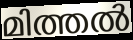
മിത്തൽ